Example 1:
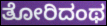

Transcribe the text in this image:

ತೋರಿದಂಥ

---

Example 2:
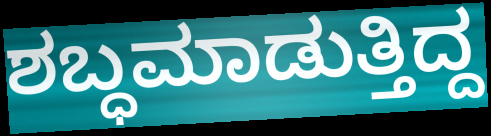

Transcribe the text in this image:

ಶಬ್ಧಮಾಡುತ್ತಿದ್ದ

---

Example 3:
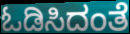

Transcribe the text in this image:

ಓಡಿಸಿದಂತೆ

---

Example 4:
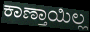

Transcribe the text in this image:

ಕಾಣ್ತಾಯಿಲ್ಲ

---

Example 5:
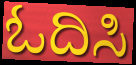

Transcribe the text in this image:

ಓದಿಸಿ